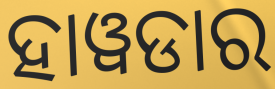
ହାୱଡାର